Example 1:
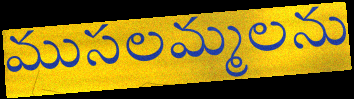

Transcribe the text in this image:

ముసలమ్మలను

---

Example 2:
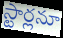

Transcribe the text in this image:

స్టార్లనూ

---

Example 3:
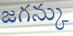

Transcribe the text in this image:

జగన్కు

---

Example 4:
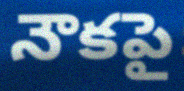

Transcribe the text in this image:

నౌకపై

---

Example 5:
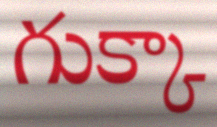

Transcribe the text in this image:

గుక్కా